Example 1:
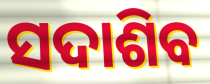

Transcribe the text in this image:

ସଦାଶିବ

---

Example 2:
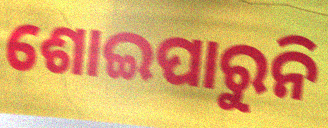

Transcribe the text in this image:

ଶୋଇପାରୁନି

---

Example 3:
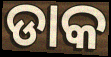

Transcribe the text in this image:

ଡାକ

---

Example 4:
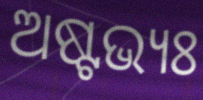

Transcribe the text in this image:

ଅଷ୍ଟଭ୍ୟଃ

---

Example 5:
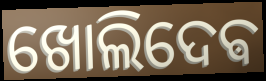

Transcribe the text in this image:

ଖୋଲିଦେଵ